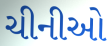
ચીનીઓ